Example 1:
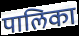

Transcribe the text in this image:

पालिका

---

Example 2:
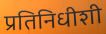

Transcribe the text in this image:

प्रतिनिधीशी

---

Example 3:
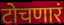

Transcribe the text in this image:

टोचणारं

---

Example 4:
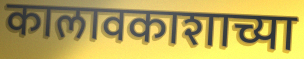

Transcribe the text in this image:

कालावकाशाच्या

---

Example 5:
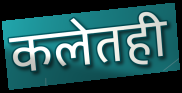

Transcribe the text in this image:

कलेतही